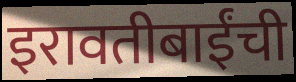
इरावतीबाईंची